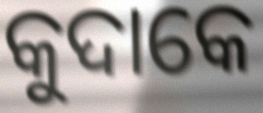
କୁଦାକେ